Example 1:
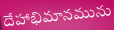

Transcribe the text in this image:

దేహాభిమానమును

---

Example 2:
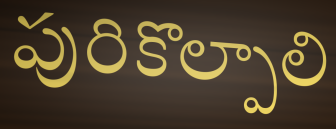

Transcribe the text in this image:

పురికొల్పాలి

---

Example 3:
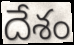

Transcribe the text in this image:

దేశం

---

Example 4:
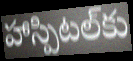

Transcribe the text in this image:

హాస్పిటల్‌కు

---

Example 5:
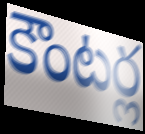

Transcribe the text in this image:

కౌంటర్ల